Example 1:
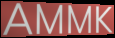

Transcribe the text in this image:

AMMK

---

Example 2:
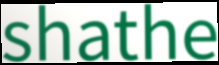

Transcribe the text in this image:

shathe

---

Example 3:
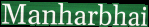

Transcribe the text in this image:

Manharbhai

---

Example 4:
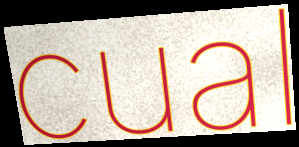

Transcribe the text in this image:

cual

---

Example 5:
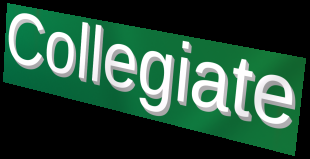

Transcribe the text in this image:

Collegiate